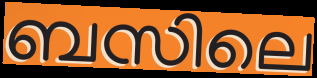
ബസിലെ